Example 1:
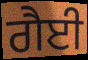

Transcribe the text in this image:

ਗੈਈ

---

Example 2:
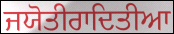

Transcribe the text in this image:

ਜਯੋਤੀਰਾਦਿਤੀਆ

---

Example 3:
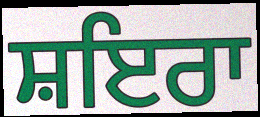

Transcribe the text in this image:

ਸ਼ਇਰਾ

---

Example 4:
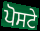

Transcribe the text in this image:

ਪੋਸਟੇ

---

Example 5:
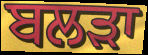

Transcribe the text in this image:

ਬਲੜਾ